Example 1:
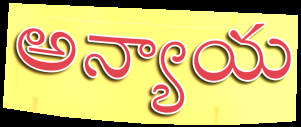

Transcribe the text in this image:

అన్యాయ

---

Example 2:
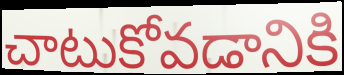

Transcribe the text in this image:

చాటుకోవడానికి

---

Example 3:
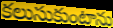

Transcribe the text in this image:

కలుసుకుంటాను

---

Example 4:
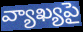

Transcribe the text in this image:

వ్యాఖ్యపై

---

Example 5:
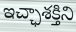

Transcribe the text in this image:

ఇచ్ఛాశక్తిని